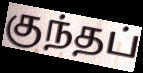
குந்தப்